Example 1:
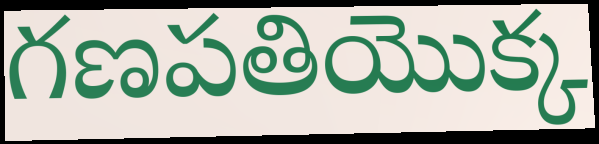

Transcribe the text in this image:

గణపతియొక్క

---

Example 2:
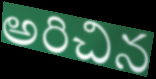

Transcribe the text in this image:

అరిచిన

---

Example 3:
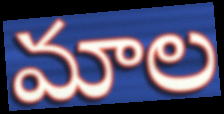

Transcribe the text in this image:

మాల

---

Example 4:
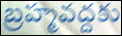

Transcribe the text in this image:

బ్రహ్మవద్దకు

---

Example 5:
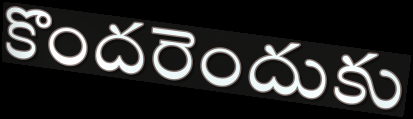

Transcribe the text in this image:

కొందరెందుకు